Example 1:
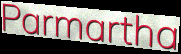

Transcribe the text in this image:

Parmartha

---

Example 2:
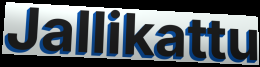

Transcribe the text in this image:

Jallikattu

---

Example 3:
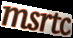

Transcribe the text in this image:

msrtc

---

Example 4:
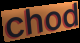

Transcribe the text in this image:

chod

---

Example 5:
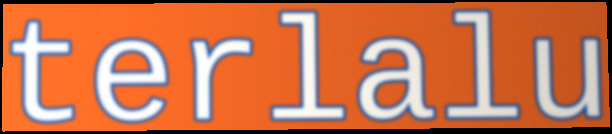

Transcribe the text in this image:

terlalu